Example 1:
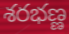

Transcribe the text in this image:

శరభణ్ణ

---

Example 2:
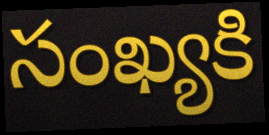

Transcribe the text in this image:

సంఖ్యకి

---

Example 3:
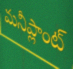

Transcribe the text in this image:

మనీప్లాంట్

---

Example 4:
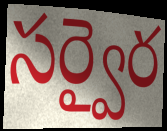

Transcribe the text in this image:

సర్వైర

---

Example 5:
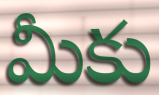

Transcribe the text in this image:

మీకు